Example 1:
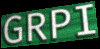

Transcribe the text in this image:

GRPI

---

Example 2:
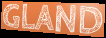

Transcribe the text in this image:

GLAND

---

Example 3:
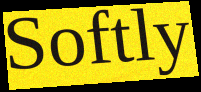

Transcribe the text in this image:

Softly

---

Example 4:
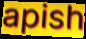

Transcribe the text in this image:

apish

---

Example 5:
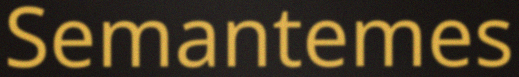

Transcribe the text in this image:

Semantemes